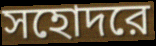
সহোদরে